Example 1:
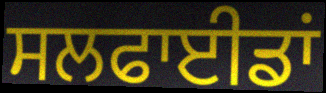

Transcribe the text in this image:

ਸਲਫਾਈਡਾਂ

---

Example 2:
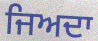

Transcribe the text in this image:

ਜਿਅਦਾ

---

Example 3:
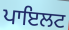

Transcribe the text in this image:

ਪਾਇਲਟ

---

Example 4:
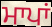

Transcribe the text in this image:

ਮਾਪਾਂ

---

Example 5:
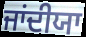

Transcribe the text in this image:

ਜਾਂਦੀਯਾ